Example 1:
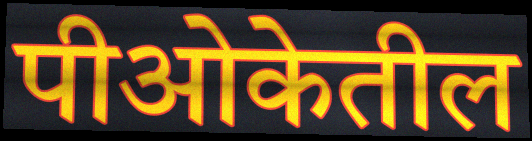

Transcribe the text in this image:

पीओकेतील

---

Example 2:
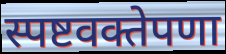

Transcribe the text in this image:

स्पष्टवक्तेपणा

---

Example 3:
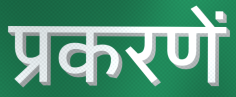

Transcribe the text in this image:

प्रकरणें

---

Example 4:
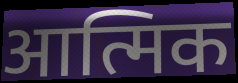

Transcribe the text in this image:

आत्मिक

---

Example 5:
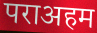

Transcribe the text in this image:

पराअहम